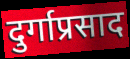
दुर्गाप्रसाद